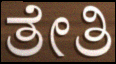
ತೇತಿ